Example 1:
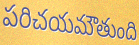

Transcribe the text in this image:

పరిచయమౌతుంది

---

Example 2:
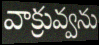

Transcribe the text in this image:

వాక్రువ్వను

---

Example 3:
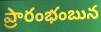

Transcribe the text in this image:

ప్రారంభంబున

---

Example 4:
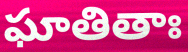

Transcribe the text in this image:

ఘాతితాః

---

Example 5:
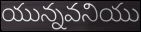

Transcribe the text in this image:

యున్నవనియు